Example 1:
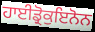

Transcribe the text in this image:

ਹਾਈਡ੍ਰੋਕੁਇਨੋਨ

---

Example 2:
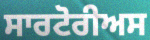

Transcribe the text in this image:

ਸਾਰਟੋਰੀਅਸ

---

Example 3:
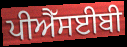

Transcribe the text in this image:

ਪੀਐੱਸਈਬੀ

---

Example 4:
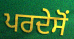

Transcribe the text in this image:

ਪਰਦੇਸੋਂ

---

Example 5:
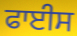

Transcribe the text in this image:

ਫਾਈਸ